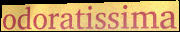
odoratissima